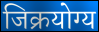
जिक्रयोग्य